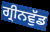
ਗ੍ਰੀਨਵੁੱਡ